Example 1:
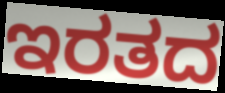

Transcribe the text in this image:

ಇರತದ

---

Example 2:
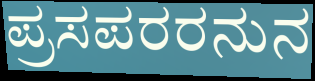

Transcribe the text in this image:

ಪ್ರಸಪರರನುನ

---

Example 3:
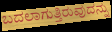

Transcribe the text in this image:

ಬದಲಾಗುತ್ತಿರುವುದನ್ನು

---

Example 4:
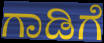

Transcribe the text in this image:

ಗಾಡಿಗೆ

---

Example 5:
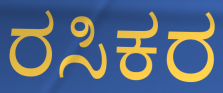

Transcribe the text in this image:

ರಸಿಕರ